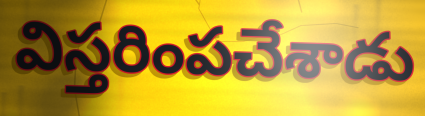
విస్తరింపచేశాడు